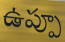
ఉప్పూ